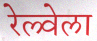
रेल्वेला